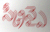
స్క్రీన్పై